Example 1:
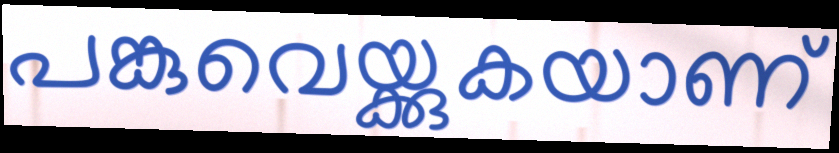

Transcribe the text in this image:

പങ്കുവെയ്ക്കുകയാണ്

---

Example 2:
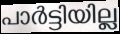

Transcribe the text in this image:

പാർട്ടിയില്ല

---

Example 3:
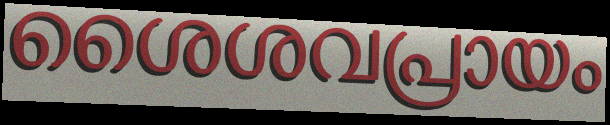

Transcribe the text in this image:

ശൈശവപ്രായം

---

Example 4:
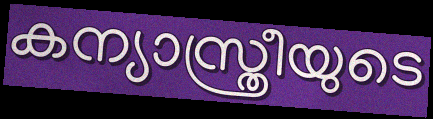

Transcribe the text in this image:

കന്യാസ്ത്രീയുടെ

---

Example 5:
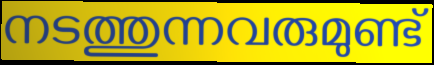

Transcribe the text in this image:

നടത്തുന്നവരുമുണ്ട്